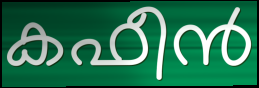
കഫീൻ